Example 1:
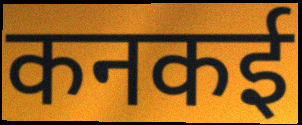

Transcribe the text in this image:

कनकई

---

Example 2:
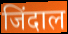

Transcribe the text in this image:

जिंदाल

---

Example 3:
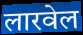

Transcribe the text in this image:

लारवेल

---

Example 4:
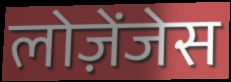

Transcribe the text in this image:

लोज़ेंजेस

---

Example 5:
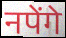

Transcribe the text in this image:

नपेंगे